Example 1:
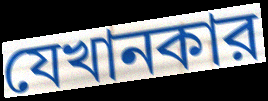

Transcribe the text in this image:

যেখানকার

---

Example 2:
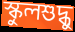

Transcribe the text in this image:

স্কুলশুদ্ধু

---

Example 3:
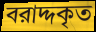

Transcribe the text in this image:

বরাদ্দকৃত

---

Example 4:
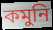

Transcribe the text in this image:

কমুনি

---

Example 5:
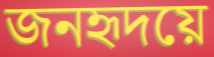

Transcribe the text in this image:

জনহৃদয়ে